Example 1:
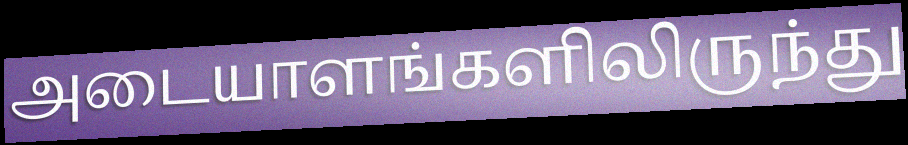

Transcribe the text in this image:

அடையாளங்களிலிருந்து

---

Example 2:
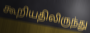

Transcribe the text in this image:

கூறியதிலிருந்து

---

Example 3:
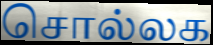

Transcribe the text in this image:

சொல்லக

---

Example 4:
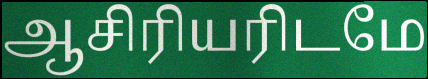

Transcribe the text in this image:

ஆசிரியரிடமே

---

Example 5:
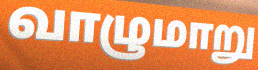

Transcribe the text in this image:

வாழுமாறு